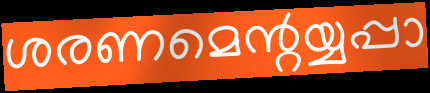
ശരണമെന്റയ്യപ്പാ